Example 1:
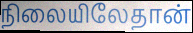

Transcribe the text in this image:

நிலையிலேதான்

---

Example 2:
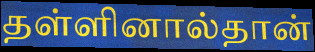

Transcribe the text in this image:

தள்ளினால்தான்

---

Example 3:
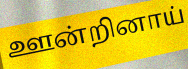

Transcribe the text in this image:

ஊன்றினாய்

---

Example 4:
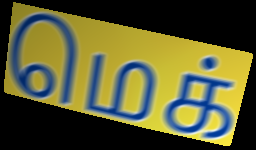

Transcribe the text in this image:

மெக்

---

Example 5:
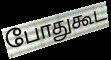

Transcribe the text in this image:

போதுகூட